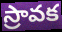
స్రావక